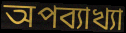
অপব্যাখ্যা